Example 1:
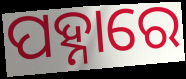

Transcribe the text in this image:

ପହ୍ନାରେ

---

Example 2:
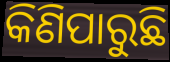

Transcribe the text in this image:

କିଣିପାରୁଛି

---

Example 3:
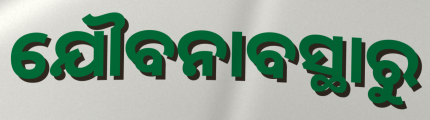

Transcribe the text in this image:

ଯୌବନାବସ୍ଥାରୁ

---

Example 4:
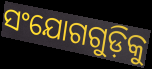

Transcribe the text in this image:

ସଂଯୋଗଗୁଡ଼ିକୁ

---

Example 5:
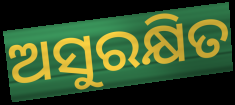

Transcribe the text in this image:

ଅସୁରକ୍ଷିତ